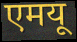
एमयू